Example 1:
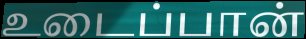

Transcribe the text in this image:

உடைப்பான்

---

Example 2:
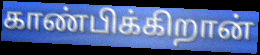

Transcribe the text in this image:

காண்பிக்கிறான்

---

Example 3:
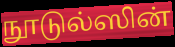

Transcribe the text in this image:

நூடுல்ஸின்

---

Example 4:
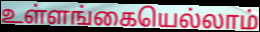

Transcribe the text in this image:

உள்ளங்கையெல்லாம்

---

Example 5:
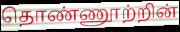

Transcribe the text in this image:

தொண்ணூற்றின்